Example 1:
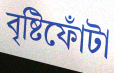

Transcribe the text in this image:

বৃষ্টিফোঁটা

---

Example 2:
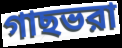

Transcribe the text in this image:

গাছভরা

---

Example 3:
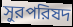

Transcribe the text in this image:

সুরপরিষদ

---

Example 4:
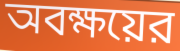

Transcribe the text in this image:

অবক্ষয়ের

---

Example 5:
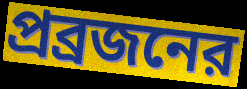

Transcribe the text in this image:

প্রব্রজনের